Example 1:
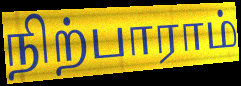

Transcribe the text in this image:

நிற்பாராம்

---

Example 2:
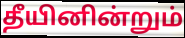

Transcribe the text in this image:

தீயினின்றும்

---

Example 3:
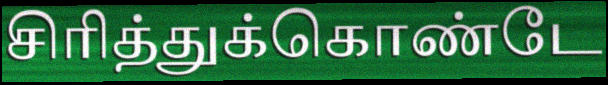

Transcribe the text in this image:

சிரித்துக்கொண்டே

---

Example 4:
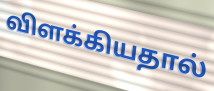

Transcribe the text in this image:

விளக்கியதால்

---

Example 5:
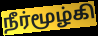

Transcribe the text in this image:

நீர்மூழ்கி